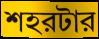
শহরটার